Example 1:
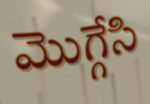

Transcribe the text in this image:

మొగ్గేసి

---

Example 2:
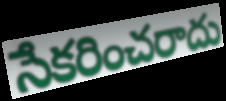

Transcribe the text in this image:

సేకరించరాదు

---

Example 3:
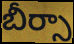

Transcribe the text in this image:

బీర్సా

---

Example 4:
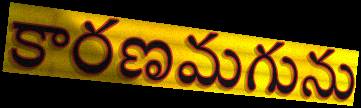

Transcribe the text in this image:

కారణమగును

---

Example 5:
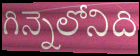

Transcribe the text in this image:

గిన్నెలోనిది